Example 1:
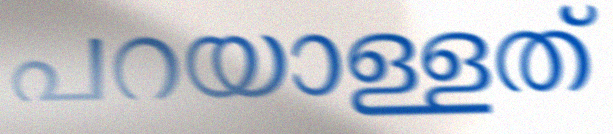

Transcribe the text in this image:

പറയാള്ളത്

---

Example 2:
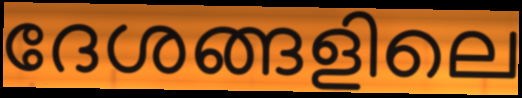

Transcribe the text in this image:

ദേശങ്ങളിലെ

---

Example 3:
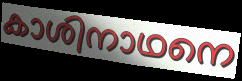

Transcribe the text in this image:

കാശിനാഥനെ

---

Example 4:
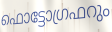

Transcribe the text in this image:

ഫൊട്ടോഗ്രഫറും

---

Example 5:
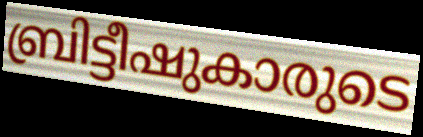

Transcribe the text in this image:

ബ്രിട്ടീഷുകാരുടെ